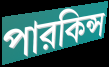
পারকিন্স